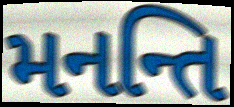
મનન્તિ